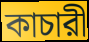
কাচারী